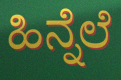
ಹಿನ್ನೆಲೆ